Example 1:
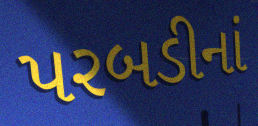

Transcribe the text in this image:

પરબડીનાં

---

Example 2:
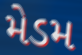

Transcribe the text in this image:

મેડમ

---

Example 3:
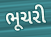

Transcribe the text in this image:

ભૂચરી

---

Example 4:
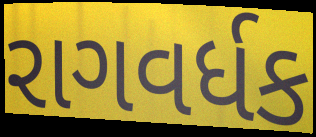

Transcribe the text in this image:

રાગવર્ધક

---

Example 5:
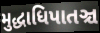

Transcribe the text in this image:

મુદ્ધાધિપાતઞ્ચ